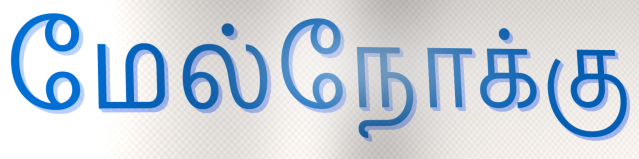
மேல்நோக்கு